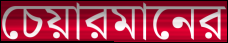
চেয়ারমানের